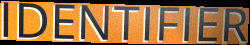
IDENTIFIER